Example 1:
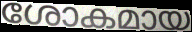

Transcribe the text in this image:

ശോകമായ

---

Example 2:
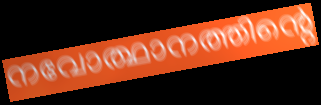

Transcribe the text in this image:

നവോത്ഥാനത്തിന്റെ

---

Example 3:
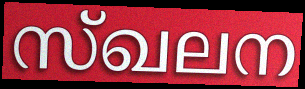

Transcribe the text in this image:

സ്ഖലന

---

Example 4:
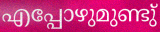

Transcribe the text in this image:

എപ്പോഴുമുണ്ടു്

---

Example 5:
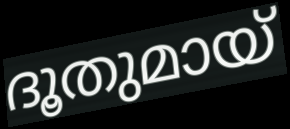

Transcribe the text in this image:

ദൂതുമായ്